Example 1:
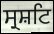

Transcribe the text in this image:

ਸ੍ਰਸ਼ਟਿ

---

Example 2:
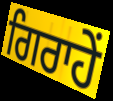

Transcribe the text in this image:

ਗਿਰਾਹੇਂ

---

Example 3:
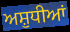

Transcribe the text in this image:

ਅਸ਼ੁਧੀਆਂ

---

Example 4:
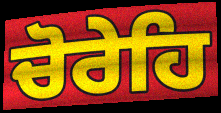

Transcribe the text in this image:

ਚੋਰੇਹਿ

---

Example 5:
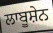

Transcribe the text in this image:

ਲਾਬੂਸ਼ੇਨ